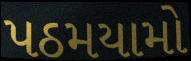
પઠમયામો